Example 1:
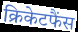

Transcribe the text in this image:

क्रिकेटफैंस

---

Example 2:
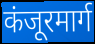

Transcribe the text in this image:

कंजूरमार्ग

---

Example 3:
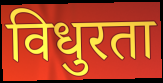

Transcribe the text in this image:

विधुरता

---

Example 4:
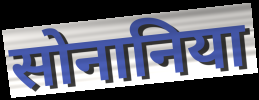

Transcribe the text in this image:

सोनानिया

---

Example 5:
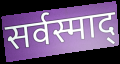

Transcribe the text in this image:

सर्वस्माद्